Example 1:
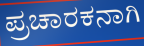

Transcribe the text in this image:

ಪ್ರಚಾರಕನಾಗಿ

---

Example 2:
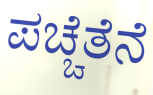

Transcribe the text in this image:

ಪಚ್ಚೆತೆನೆ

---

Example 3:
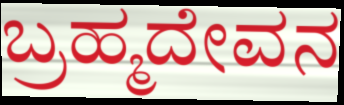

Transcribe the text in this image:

ಬ್ರಹ್ಮದೇವನ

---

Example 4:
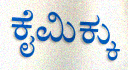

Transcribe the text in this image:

ಕೈಮಿಕ್ಕು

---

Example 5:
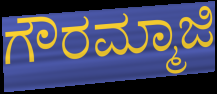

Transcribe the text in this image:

ಗೌರಮ್ಮಾಜಿ